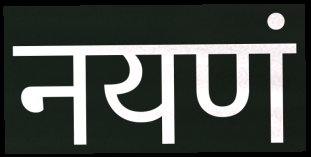
नयणं